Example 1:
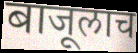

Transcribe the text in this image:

बाजूलाच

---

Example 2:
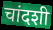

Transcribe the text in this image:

चांदशी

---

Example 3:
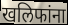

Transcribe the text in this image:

खलिफांना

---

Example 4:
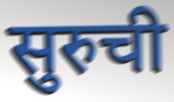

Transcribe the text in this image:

सुरुची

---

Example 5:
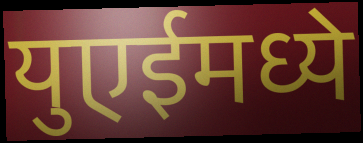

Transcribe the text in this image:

युएईमध्ये